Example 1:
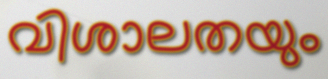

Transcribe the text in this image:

വിശാലതയും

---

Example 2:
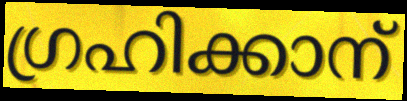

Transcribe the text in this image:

ഗ്രഹിക്കാന്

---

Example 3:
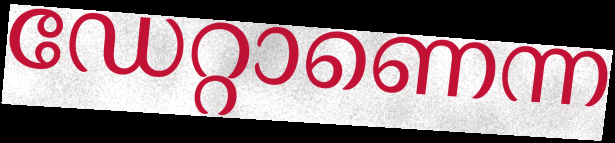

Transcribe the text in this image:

ഡേറ്റാണെന്ന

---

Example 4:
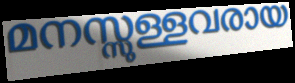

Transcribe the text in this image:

മനസ്സുള്ളവരായ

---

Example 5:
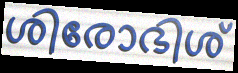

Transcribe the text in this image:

ശിരോഭിശ്